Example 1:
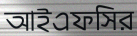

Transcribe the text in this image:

আইএফসির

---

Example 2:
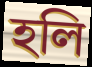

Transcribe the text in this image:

হলি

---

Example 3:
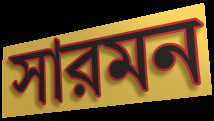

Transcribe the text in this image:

সারমন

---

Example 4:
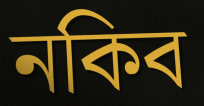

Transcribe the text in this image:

নকিব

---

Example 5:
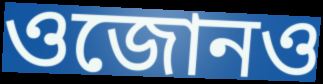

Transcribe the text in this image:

ওজোনও